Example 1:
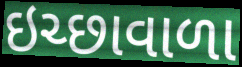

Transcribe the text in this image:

ઇચ્છાવાળા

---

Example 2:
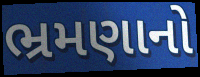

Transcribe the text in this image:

ભ્રમણાનો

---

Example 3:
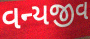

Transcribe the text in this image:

વન્યજીવ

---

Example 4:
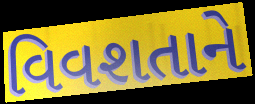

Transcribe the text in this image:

વિવશતાને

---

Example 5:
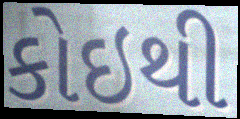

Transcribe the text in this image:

કોઇથી